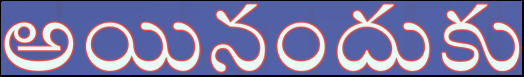
అయినందుకు